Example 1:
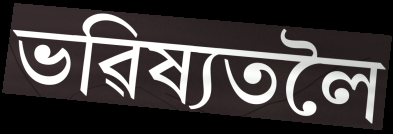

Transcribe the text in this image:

ভৱিষ্যতলৈ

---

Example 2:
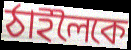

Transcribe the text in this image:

ঠাইলৈকে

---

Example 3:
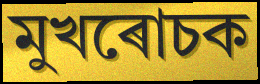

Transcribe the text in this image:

মুখৰোচক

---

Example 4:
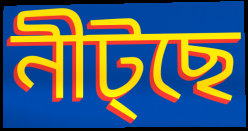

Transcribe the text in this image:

নীট্‌ছে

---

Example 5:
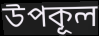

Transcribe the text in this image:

উপকূল